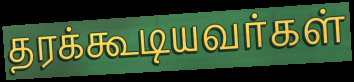
தரக்கூடியவர்கள்